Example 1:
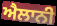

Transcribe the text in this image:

ਐਲਾਨੀ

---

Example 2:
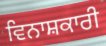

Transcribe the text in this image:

ਵਿਨਾਸ਼ਕਾਰੀ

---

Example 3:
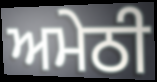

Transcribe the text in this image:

ਅਮੇਠੀ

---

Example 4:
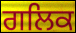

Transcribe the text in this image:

ਗਲਿਕ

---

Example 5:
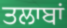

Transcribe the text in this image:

ਤਲਾਬਾਂ